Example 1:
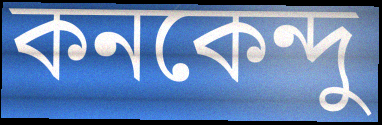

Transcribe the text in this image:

কনকেন্দু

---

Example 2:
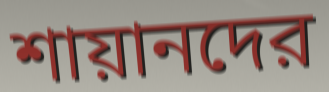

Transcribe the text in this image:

শায়ানদের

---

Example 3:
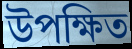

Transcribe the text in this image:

উপক্ষিত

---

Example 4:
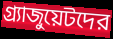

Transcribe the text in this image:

গ্র্যাজুয়েটদের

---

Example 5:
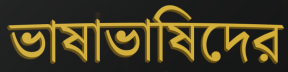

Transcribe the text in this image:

ভাষাভাষিদের